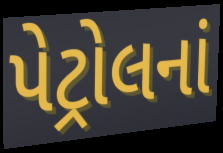
પેટ્રોલનાં